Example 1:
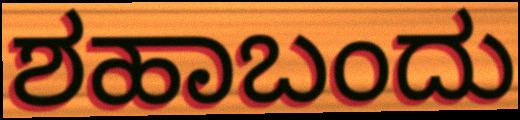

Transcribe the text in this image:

ಶಹಾಬಂದು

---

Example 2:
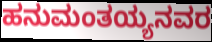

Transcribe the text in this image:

ಹನುಮಂತಯ್ಯನವರ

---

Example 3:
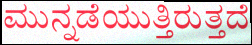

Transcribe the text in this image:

ಮುನ್ನಡೆಯುತ್ತಿರುತ್ತದೆ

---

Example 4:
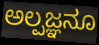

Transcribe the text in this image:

ಅಲ್ಪಜ್ಞನೂ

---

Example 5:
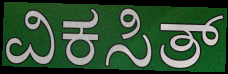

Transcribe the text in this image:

ವಿಕಸಿತ್